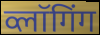
व्लॉगिंग